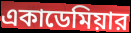
একাডেমিয়ার